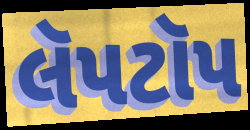
લૅપટૉપ